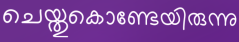
ചെയ്തുകൊണ്ടേയിരുന്നു